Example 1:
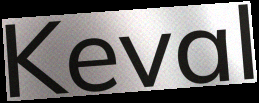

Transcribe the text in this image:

Keval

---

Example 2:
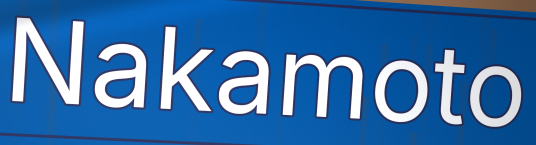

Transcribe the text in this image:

Nakamoto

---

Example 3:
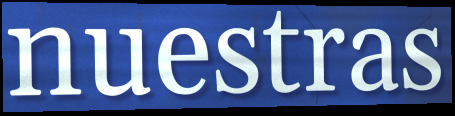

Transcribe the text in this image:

nuestras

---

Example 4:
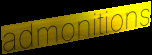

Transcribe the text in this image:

admonitions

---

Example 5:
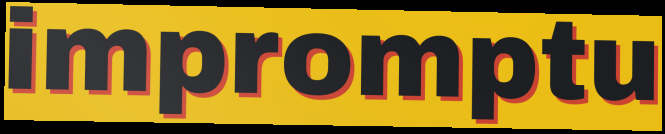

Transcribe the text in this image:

impromptu